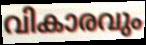
വികാരവും